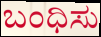
ಬಂಧಿಸು